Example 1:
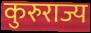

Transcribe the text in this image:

कुरुराज्य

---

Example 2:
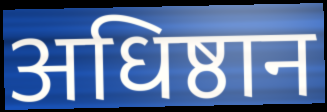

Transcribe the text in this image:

अधिष्ठान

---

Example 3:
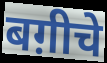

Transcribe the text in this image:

बग़ीचे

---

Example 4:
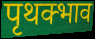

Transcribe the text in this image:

पृथक्भाव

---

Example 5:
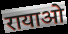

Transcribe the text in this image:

रायाओ